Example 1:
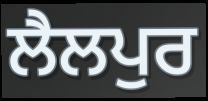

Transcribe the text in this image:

ਲੈਲਪੁਰ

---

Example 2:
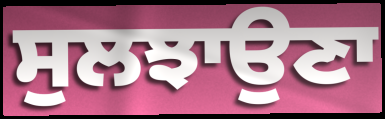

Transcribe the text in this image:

ਸੁਲਝਾਉਣਾ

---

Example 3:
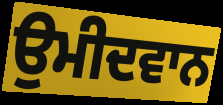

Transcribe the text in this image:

ਉਮੀਦਵਾਨ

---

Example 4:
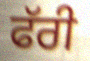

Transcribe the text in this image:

ਫੱਰੀ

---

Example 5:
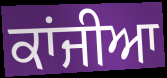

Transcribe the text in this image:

ਕਾਂਜੀਆ